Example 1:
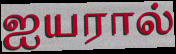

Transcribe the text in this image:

ஐயரால்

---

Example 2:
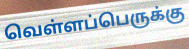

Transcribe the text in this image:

வெள்ளப்பெருக்கு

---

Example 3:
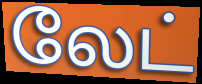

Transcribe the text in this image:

லேட்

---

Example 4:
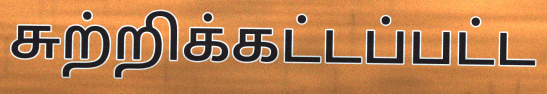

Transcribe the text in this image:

சுற்றிக்கட்டப்பட்ட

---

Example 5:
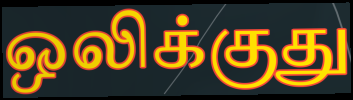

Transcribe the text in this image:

ஒலிக்குது